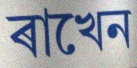
ৰাখেন